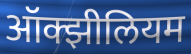
ऑक्झीलियम